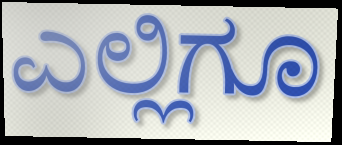
ಎಲ್ಲಿಗೂ